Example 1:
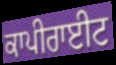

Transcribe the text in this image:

ਕਾਪੀਰਾਈਟ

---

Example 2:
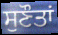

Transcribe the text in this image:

ਸੁਣੌਤਾਂ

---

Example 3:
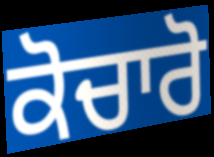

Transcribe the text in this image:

ਕੋਚਾਰੋ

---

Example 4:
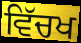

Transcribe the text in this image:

ਵਿੱਚਖ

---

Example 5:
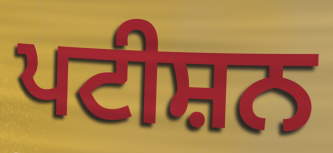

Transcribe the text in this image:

ਪਟੀਸ਼ਨ